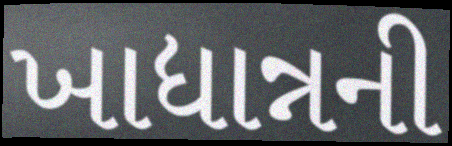
ખાદ્યાન્નની